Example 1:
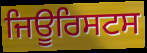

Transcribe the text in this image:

ਜਿਊਰਿਸਟਸ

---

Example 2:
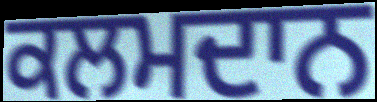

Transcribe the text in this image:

ਕਲਮਦਾਨ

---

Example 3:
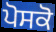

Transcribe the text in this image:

ਪੋਸਕੋ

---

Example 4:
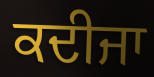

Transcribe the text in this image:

ਕਦੀਜਾ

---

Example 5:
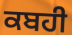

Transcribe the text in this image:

ਕਬਹੀ